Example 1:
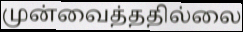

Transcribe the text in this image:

முன்வைத்ததில்லை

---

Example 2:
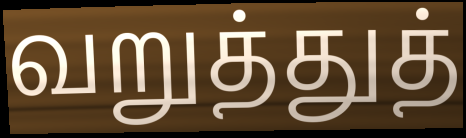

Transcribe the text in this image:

வறுத்துத்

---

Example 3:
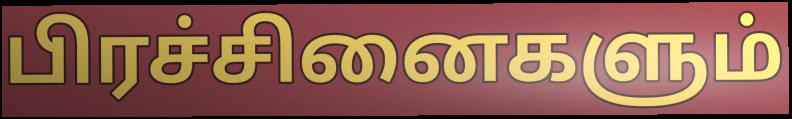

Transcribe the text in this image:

பிரச்சினைகளும்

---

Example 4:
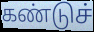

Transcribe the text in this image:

கண்டுச்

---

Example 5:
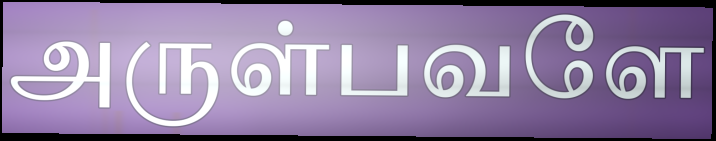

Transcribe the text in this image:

அருள்பவளே